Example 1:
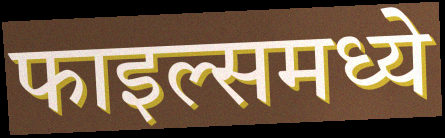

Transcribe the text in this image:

फाइल्समध्ये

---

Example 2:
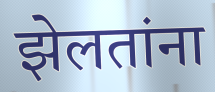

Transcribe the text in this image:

झेलतांना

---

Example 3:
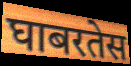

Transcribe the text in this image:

घाबरतेस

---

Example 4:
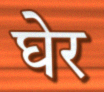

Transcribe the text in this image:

घेर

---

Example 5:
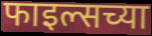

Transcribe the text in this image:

फाइल्सच्या